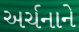
અર્ચનાને